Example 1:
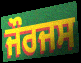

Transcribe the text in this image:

ਜੌਰਜਸ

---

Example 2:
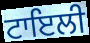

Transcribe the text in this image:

ਟਾਇਲੀ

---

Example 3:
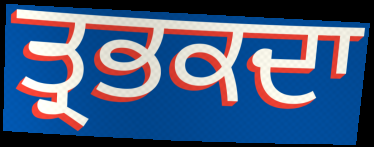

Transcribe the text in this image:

ਤ੍ਰਭਕਦਾ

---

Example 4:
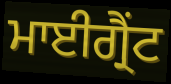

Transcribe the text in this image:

ਮਾਈਗ੍ਰੈਂਟ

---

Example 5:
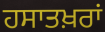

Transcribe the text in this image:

ਹਸਾਤਖ਼ਰਾਂ